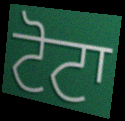
ਟੋਟਾ